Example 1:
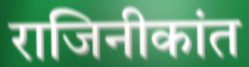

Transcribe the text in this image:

राजिनीकांत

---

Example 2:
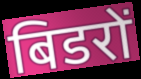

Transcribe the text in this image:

बिडरों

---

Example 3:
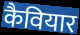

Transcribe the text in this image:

कैवियार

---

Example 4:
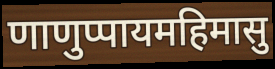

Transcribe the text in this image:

णाणुप्पायमहिमासु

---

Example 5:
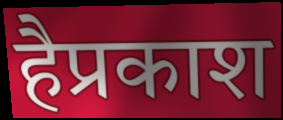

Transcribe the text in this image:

हैप्रकाश